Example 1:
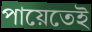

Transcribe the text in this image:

পায়েতেই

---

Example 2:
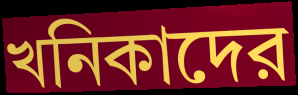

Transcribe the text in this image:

খনিকাদের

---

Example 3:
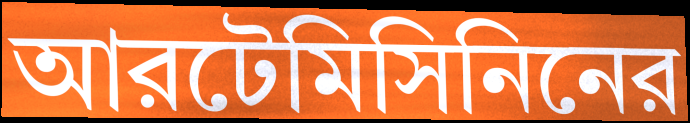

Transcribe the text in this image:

আরটেমিসিনিনের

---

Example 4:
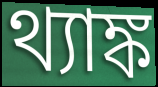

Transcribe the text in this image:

থ্যাঙ্ক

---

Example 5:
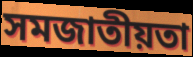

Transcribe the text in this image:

সমজাতীয়তা